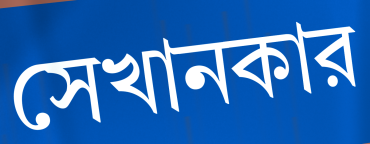
সেখানকার